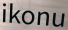
ikonu